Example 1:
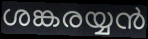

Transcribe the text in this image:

ശങ്കരയ്യൻ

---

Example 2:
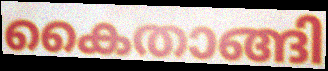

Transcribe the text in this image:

കൈതാങ്ങി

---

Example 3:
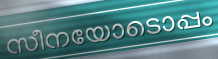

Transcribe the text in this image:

സീനയോടൊപ്പം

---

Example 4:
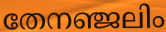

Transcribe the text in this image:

തേനഞ്ജലിം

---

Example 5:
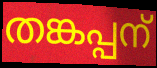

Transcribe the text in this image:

തങ്കപ്പന്